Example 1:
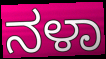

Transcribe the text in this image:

ನಳಾ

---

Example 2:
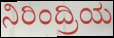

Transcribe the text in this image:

ನಿರಿಂದ್ರಿಯ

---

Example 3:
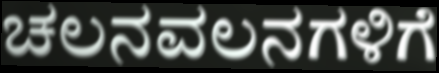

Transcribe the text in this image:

ಚಲನವಲನಗಳಿಗೆ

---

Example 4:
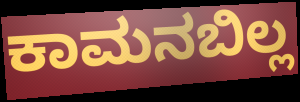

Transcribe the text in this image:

ಕಾಮನಬಿಲ್ಲ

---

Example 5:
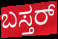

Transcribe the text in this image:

ಬಸ್ತರ್